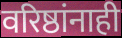
वरिष्ठांनाही